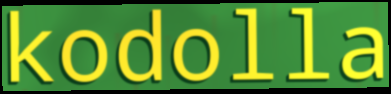
kodolla